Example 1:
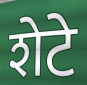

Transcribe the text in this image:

शेटे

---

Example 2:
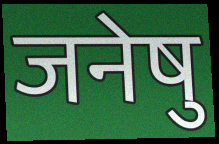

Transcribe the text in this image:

जनेषु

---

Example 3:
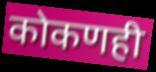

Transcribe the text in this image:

कोकणही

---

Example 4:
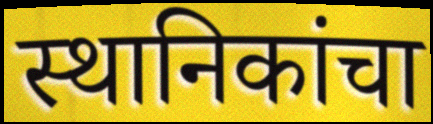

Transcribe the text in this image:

स्थानिकांचा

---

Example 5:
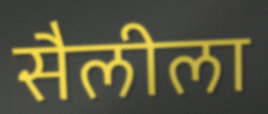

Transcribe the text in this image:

सैलीला